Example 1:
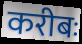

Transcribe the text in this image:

करीबः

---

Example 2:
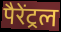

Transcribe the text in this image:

पैरेंट्रल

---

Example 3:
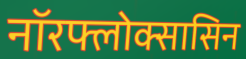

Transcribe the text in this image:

नॉरफ्लोक्सासिन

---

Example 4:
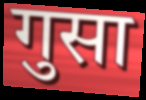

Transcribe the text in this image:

गुसा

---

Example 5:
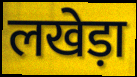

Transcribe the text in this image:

लखेड़ा